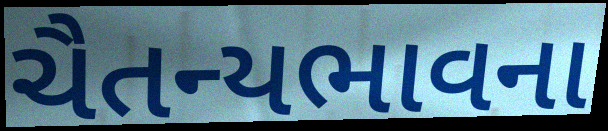
ચૈતન્યભાવના